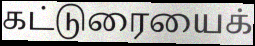
கட்டுரையைக்